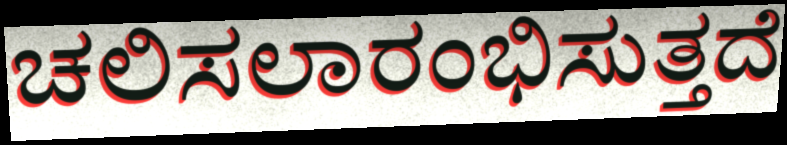
ಚಲಿಸಲಾರಂಭಿಸುತ್ತದೆ